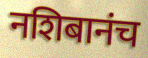
नशिबानंच